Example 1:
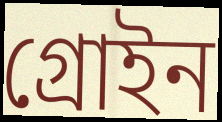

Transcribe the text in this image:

গ্রোইন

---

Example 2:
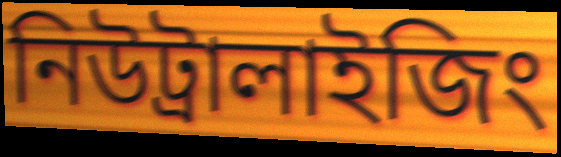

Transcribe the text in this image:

নিউট্রালাইজিং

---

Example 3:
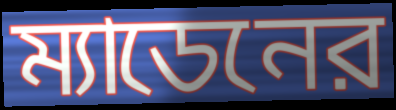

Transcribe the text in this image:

ম্যাডেনের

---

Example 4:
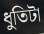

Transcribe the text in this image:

ধুতিটা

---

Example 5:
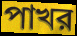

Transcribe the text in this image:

পাখর